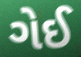
ગેઈ